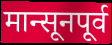
मान्सूनपूर्व